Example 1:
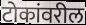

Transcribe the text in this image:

टोकांवरील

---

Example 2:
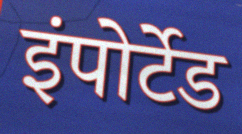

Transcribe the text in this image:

इंपोर्टेड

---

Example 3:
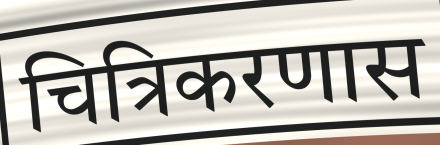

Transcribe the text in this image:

चित्रिकरणास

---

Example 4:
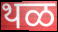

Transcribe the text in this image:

थळ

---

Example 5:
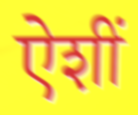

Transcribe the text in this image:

ऐशीं